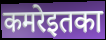
कमरेइतका